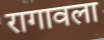
रागावला